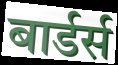
बार्डर्स